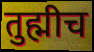
तुह्मीच